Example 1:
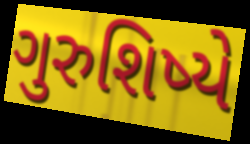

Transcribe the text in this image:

ગુરુશિષ્યે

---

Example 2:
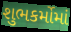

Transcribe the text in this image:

શુભકર્મોમાં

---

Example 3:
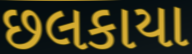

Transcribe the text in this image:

છલકાયા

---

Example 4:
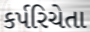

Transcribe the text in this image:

કર્પરિચેતા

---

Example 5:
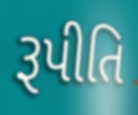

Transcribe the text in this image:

રૂપીતિ